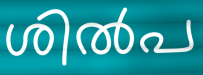
ശിൽപ